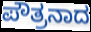
ಪೌತ್ರನಾದ